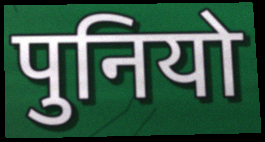
पुनियो